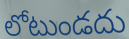
లోటుండదు